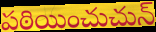
పఠియించుచున్